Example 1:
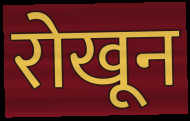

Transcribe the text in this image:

रोखून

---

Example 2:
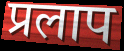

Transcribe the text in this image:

प्रलाप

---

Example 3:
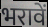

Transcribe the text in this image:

भरावें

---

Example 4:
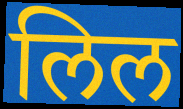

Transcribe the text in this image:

लिल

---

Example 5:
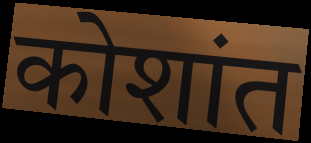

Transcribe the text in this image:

कोशांत